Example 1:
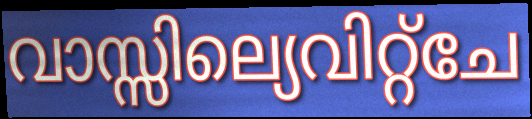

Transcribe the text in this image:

വാസ്സില്യെവിറ്റ്ചേ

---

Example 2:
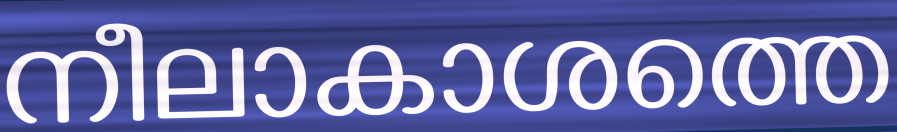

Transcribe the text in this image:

നീലാകാശത്തെ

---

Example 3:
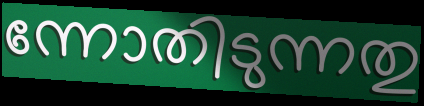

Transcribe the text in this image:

ന്നോതിടുന്നതു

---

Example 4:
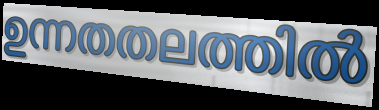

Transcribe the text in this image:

ഉന്നതതലത്തിൽ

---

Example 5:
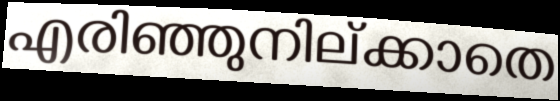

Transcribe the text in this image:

എരിഞ്ഞുനില്ക്കാതെ